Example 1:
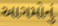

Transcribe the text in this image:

આગમોનું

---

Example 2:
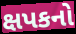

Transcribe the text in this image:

ક્ષપકનો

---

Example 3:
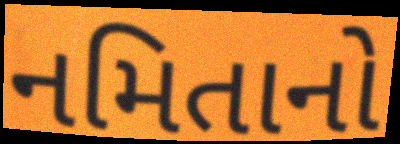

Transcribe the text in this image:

નમિતાનો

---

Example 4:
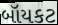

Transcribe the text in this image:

બૉયકટ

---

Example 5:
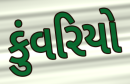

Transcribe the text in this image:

કુંવરિયો